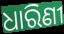
ଧାରିଣୀ